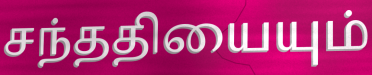
சந்ததியையும்